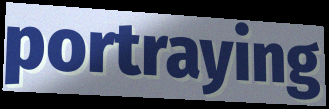
portraying